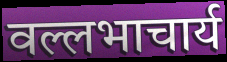
वल्लभाचार्य